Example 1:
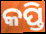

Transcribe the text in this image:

କପ୍ତି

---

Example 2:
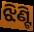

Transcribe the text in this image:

ଝିଣ୍ଟି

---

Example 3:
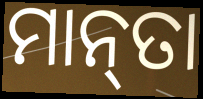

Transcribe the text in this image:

ମାନ୍‌ତା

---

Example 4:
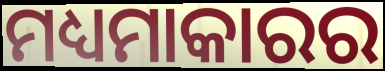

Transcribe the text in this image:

ମଧ୍ୟମାକାରର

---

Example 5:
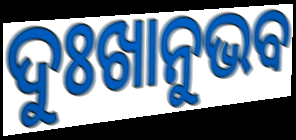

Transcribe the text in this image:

ଦୁଃଖାନୁଭବ